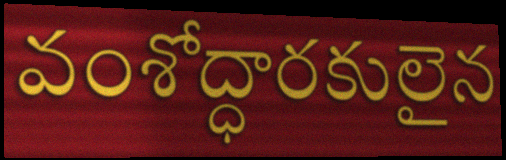
వంశోద్ధారకులైన